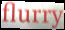
flurry